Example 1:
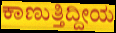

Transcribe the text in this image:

ಕಾಣುತ್ತಿದ್ದೀಯ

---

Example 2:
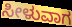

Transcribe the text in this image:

ಸೀಳುವಾಗ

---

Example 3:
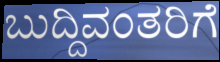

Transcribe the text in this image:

ಬುದ್ದಿವಂತರಿಗೆ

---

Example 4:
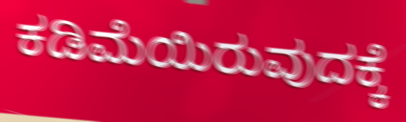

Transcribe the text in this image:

ಕಡಿಮೆಯಿರುವುದಕ್ಕೆ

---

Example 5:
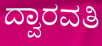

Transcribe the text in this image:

ದ್ವಾರವತಿ